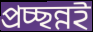
প্রচ্ছন্নই